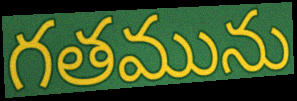
గతమును